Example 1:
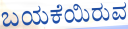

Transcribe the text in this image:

ಬಯಕೆಯಿರುವ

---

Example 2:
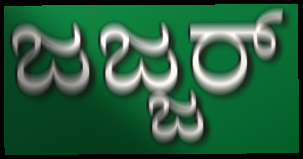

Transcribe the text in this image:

ಜಜ್ಜರ್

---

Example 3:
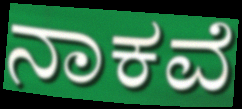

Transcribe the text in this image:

ನಾಕವೆ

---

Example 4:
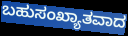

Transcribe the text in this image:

ಬಹುಸಂಖ್ಯಾತವಾದ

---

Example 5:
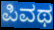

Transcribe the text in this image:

ಪಿವಥ